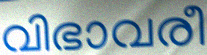
വിഭാവരീ